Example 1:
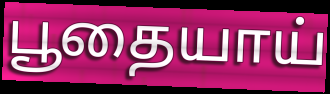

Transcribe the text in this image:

பூதையாய்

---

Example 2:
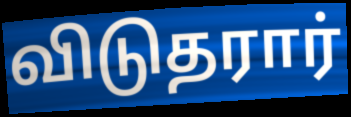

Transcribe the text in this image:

விடுதரார்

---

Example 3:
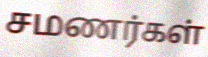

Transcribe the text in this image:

சமணர்கள்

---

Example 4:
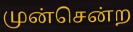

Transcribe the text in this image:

முன்சென்ற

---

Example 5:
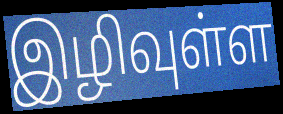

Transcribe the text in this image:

இழிவுள்ள